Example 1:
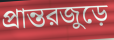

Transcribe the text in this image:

প্রান্তরজুড়ে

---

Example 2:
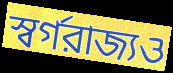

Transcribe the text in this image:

স্বর্গরাজ্যও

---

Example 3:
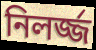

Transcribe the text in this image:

নিলর্জ্জ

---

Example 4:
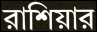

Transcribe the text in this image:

রাশিয়ার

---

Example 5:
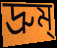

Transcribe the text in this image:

দ্রুম্